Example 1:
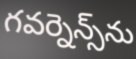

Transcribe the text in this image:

గవర్నెన్స్‌ను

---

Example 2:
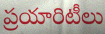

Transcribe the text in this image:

ప్రయారిటీలు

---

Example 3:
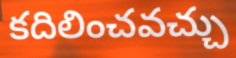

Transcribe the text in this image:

కదిలించవచ్చు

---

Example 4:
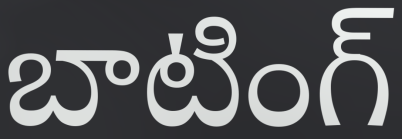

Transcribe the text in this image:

బాటింగ్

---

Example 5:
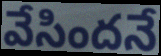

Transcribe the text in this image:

వేసిందనే